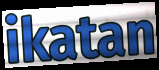
ikatan